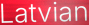
Latvian